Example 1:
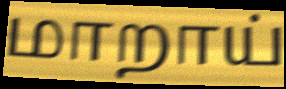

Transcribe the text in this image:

மாறாய்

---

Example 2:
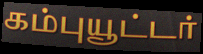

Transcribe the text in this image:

கம்புயூட்டர்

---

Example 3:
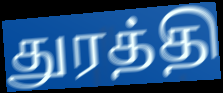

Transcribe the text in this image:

துரத்தி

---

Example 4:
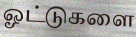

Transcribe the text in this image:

ஓட்டுகளை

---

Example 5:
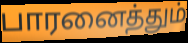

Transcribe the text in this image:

பாரனைத்தும்